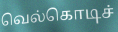
வெல்கொடிச்